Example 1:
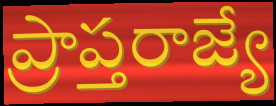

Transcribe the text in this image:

ప్రాప్తరాజ్యే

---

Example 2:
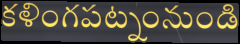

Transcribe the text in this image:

కళింగపట్నంనుండి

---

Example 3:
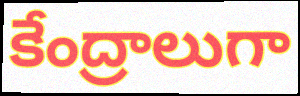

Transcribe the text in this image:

కేంద్రాలుగా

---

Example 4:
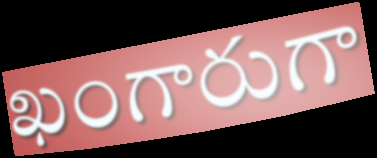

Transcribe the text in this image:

ఖంగారుగా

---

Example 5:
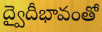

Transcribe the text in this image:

ద్వైదీభావంతో